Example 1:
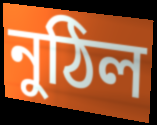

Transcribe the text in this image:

নুঠিল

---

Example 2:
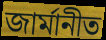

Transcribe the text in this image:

জাৰ্মানীত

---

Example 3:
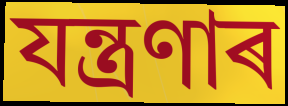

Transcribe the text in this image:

যন্ত্ৰণাৰ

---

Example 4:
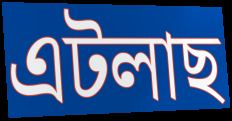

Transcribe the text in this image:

এটলাছ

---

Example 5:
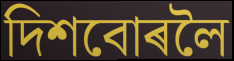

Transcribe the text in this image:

দিশবোৰলৈ